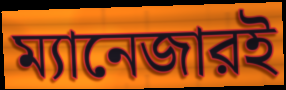
ম্যানেজারই